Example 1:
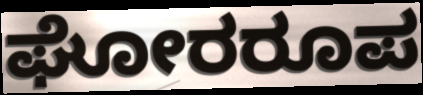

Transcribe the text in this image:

ಘೋರರೂಪ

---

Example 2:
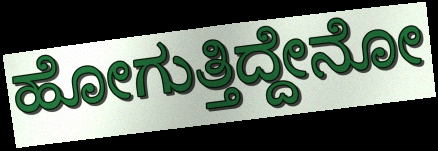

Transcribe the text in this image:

ಹೋಗುತ್ತಿದ್ದೇನೋ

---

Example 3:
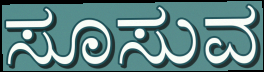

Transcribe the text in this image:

ಸೂಸುವ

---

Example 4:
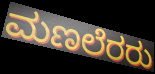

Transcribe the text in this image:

ಮಣಲೆರರು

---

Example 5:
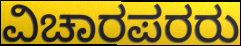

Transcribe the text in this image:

ವಿಚಾರಪರರು